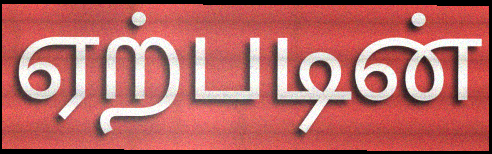
ஏற்படின்